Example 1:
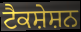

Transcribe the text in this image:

ਟੈਕਸ਼ੇਸ਼ਨ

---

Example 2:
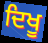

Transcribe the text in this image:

ਦਿਖੂ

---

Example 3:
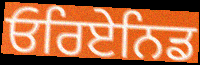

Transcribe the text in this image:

ਓਰਿਏਨਿਡ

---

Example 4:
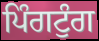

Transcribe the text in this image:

ਪਿੰਗਟੁੰਗ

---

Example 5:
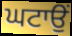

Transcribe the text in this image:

ਘਟਾਉਂ